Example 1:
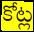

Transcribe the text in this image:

కోట్ల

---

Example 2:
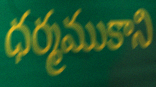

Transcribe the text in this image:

ధర్మముకాని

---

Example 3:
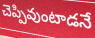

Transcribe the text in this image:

చెప్పివుంటాడనే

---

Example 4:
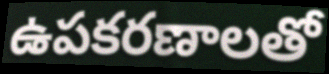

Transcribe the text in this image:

ఉపకరణాలతో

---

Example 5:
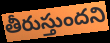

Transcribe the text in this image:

తీరుస్తుందని